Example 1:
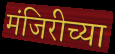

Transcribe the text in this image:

मंजिरीच्या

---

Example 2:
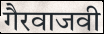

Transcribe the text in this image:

गैरवाजवी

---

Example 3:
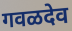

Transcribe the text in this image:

गवळदेव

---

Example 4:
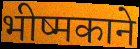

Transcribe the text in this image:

भीष्मकाने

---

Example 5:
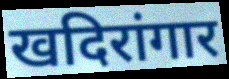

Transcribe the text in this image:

खदिरांगार